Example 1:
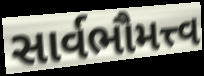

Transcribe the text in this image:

સાર્વભૌમત્ત્વ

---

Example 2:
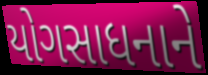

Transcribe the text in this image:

યોગસાધનાને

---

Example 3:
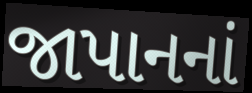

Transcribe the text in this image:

જાપાનનાં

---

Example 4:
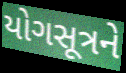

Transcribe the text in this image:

યોગસૂત્રને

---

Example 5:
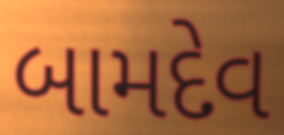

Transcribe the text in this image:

બામદેવ